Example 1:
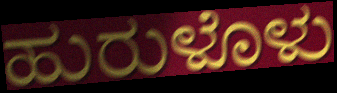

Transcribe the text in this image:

ಹುರುಳೊಳು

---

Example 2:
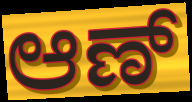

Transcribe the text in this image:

ಆಣ್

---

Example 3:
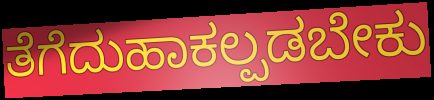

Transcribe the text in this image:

ತೆಗೆದುಹಾಕಲ್ಪಡಬೇಕು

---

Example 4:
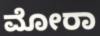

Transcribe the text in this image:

ಮೋರಾ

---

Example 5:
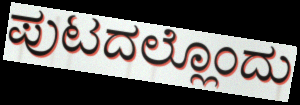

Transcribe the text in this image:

ಪುಟದಲ್ಲೊಂದು